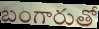
బంగారుతో